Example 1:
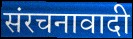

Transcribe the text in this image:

संरचनावादी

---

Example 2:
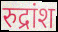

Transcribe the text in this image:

रुद्रांश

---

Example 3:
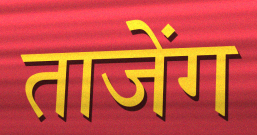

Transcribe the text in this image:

ताजेंग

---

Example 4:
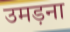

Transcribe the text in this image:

उमड़ना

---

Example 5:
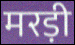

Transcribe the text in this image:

मरड़ी